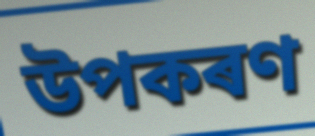
উপকৰণ